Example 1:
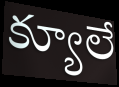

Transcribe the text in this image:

క్యూలే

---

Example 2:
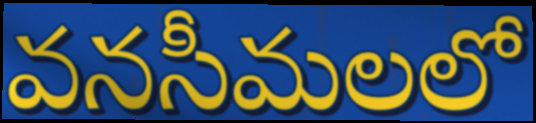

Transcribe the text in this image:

వనసీమలలో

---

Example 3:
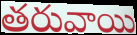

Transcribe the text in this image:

తరువాయి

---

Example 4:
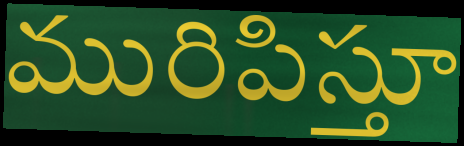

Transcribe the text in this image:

మురిపిస్తూ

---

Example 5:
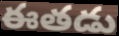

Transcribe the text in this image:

ఈతడు